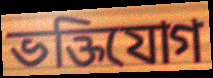
ভক্তিযোগ